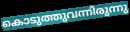
കൊടുത്തുവന്നിരുന്നു